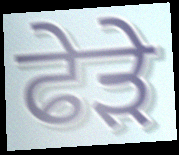
ਫੇੜੇ